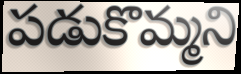
పడుకొమ్మని